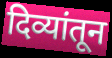
दिव्यांतून